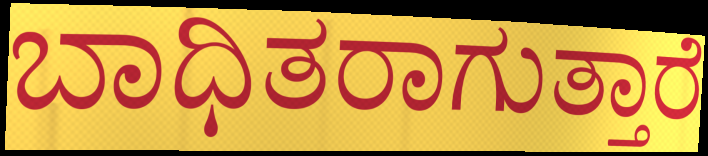
ಬಾಧಿತರಾಗುತ್ತಾರೆ